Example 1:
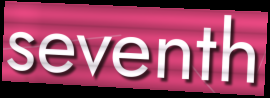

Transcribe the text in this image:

seventh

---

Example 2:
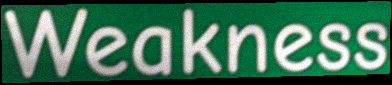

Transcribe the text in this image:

Weakness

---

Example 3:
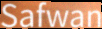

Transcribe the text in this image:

Safwan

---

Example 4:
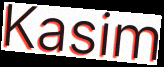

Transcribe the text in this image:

Kasim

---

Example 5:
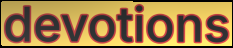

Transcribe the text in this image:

devotions